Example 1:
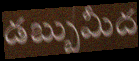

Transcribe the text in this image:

డబ్బుమీద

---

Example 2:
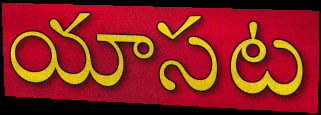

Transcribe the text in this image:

యాసట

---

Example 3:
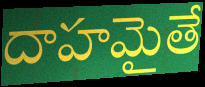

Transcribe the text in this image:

దాహమైతే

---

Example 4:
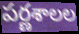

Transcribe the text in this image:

పర్ణశాలల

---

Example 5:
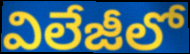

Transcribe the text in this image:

విలేజీలో